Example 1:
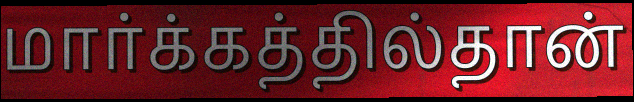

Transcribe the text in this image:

மார்க்கத்தில்தான்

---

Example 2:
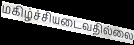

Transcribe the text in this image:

மகிழ்ச்சியடைவதில்லை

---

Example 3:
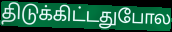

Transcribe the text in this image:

திடுக்கிட்டதுபோல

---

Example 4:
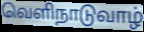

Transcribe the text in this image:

வெளிநாடுவாழ்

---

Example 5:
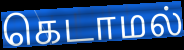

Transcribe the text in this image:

கெடாமல்